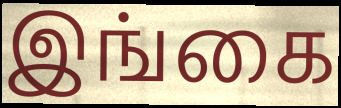
இங்கை